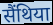
सैंथिया